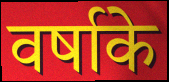
वर्षाके